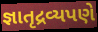
જ્ઞાતૃદ્રવ્યપણે